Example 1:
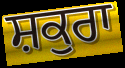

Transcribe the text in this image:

ਸ਼ਕੁਰਾ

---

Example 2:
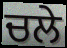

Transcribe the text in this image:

ਚਲੇ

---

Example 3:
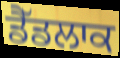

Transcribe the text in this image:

ਡੈੱਡਲਾਕ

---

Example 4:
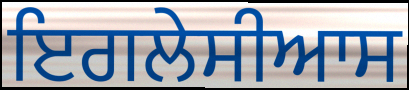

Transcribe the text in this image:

ਇਗਲੇਸੀਆਸ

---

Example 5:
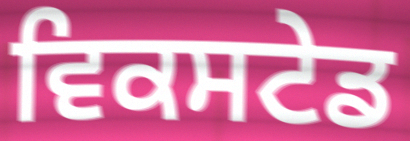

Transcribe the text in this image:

ਵਿਕਸਟੇਡ